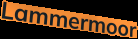
Lammermoor